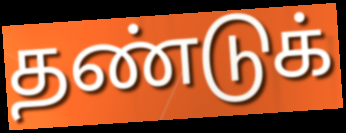
தண்டுக்